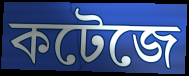
কটেজে